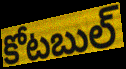
కోటబుల్